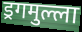
ड्रगमुल्ला